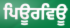
ਪਿਊਰਵਿਊ